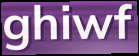
ghiwf